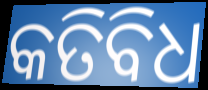
କତିବିଧ